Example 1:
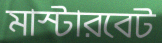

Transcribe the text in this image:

মাস্টারবেট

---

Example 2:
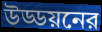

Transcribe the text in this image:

উড্ডয়নের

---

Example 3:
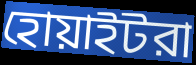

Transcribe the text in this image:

হোয়াইটরা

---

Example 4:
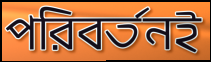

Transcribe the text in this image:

পরিবর্তনই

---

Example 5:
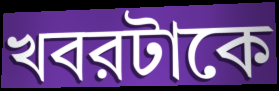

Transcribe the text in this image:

খবরটাকে